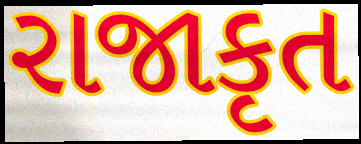
રાજાકૃત